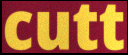
cutt